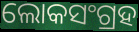
ଲୋକସଂଗ୍ରହ